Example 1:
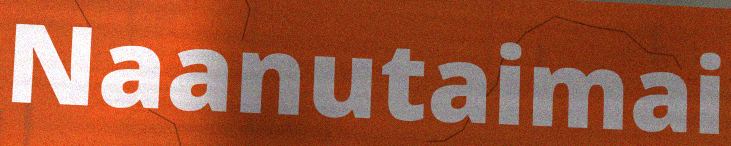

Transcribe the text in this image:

Naanutaimai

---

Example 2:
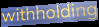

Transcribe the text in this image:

withholding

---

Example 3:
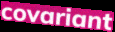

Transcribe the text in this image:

covariant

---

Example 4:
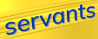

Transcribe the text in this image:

servants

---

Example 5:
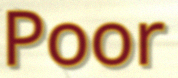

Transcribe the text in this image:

Poor